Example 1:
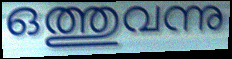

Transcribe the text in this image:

ഒത്തുവന്നു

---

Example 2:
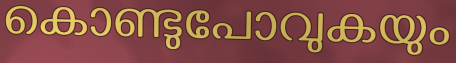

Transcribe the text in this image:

കൊണ്ടുപോവുകയും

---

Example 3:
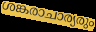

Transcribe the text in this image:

ശങ്കരാചാര്യരും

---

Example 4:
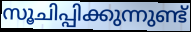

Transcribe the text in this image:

സൂചിപ്പിക്കുന്നുണ്ട്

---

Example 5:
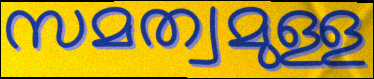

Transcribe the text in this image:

സമത്വമുള്ള